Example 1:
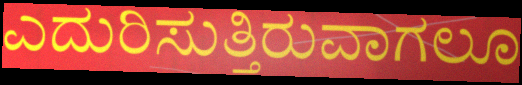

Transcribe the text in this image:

ಎದುರಿಸುತ್ತಿರುವಾಗಲೂ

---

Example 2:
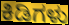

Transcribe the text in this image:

ಕಿಡಿಗಳು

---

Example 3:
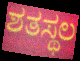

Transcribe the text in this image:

ಶತಸ್ಥಲ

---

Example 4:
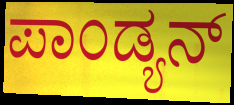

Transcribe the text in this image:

ಪಾಂಡ್ಯನ್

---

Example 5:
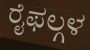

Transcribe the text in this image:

ರೈಫಲ್ಗಳ